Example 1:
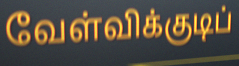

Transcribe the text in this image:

வேள்விக்குடிப்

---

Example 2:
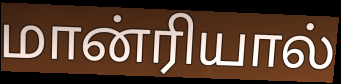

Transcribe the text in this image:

மான்ரியால்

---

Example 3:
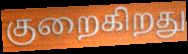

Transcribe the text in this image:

குறைகிறது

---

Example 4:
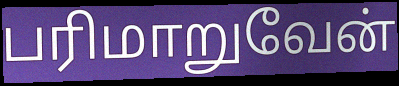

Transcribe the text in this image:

பரிமாறுவேன்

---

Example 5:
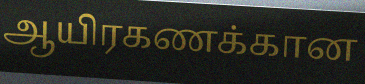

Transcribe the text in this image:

ஆயிரகணக்கான